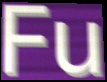
Fu